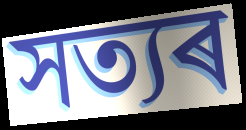
সত্যৰ